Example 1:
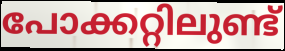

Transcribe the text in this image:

പോക്കറ്റിലുണ്ട്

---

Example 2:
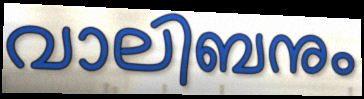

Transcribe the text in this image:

വാലിബനും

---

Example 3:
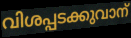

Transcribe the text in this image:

വിശപ്പടക്കുവാന്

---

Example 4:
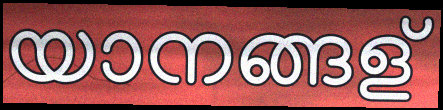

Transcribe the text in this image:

യാനങ്ങള്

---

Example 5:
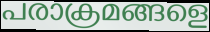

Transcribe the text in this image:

പരാക്രമങ്ങളെ